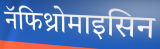
नॅफिथ्रोमाइसिन